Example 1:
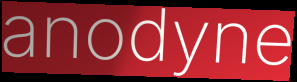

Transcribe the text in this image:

anodyne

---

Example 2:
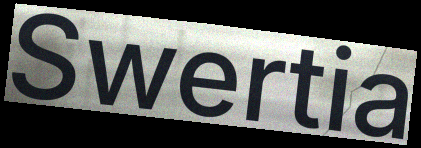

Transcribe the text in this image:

Swertia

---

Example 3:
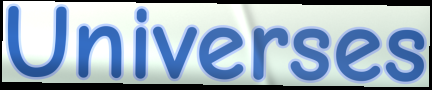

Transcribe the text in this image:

Universes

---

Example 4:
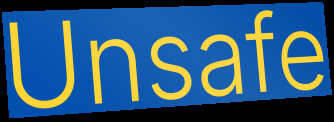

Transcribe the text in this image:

Unsafe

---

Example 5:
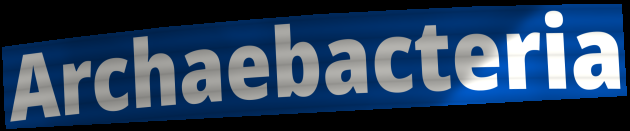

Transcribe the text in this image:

Archaebacteria